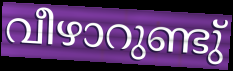
വീഴാറുണ്ടു്